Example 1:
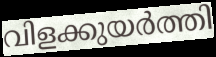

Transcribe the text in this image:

വിളക്കുയർത്തി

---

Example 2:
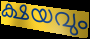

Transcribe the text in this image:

ക്ഷയവും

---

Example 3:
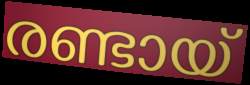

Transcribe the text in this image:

രണ്ടായ്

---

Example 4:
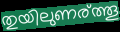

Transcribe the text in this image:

തുയിലുണര്ത്തൂ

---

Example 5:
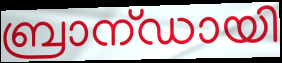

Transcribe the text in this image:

ബ്രാന്ഡായി